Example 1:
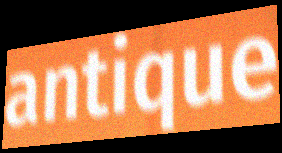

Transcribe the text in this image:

antique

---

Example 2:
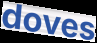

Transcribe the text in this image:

doves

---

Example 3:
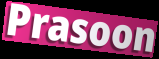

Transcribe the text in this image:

Prasoon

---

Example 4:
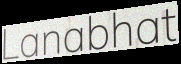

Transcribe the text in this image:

Lanabhat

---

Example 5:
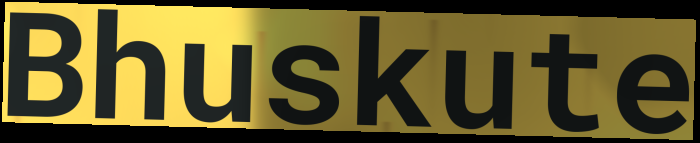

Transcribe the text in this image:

Bhuskute